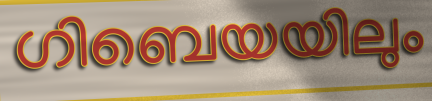
ഗിബെയയിലും